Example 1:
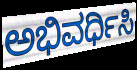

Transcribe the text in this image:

ಅಭಿವರ್ಧಿಸಿ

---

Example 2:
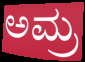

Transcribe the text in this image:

ಅಮ್ರ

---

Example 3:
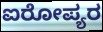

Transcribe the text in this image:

ಐರೋಪ್ಯರ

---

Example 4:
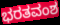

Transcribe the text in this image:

ಭರತವಂಶ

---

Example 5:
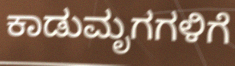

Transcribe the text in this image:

ಕಾಡುಮೃಗಗಳಿಗೆ